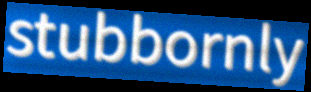
stubbornly